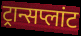
ट्रान्सप्लांट